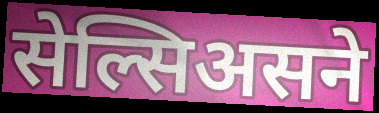
सेल्सिअसने